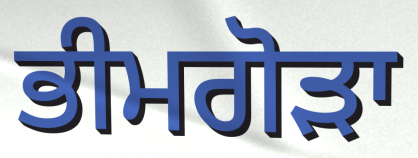
ਭੀਮਗੋੜਾ